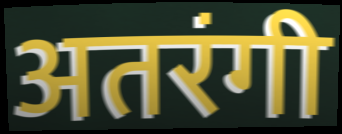
अतरंगी